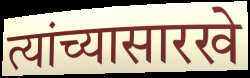
त्यांच्यासारखे